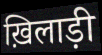
ख़िलाड़ी